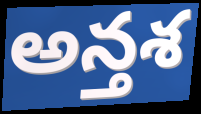
అన్తశ